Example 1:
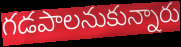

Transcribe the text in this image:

గడపాలనుకున్నారు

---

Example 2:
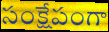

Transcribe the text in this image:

సంక్షేపంగా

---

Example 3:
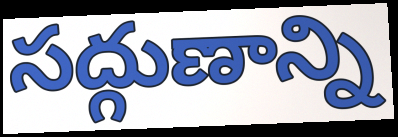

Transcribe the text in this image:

సద్గుణాన్ని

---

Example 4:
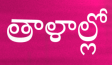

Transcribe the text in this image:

తాళాల్లో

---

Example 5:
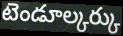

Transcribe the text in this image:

టెండూల్కర్కు